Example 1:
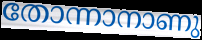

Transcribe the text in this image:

തോന്നാനാണു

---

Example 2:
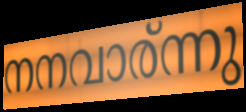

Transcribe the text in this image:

നനവാര്ന്നു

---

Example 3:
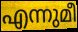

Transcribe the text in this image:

എന്നുമീ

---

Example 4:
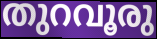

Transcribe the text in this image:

തുറവൂരു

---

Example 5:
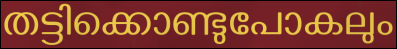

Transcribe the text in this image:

തട്ടിക്കൊണ്ടുപോകലും